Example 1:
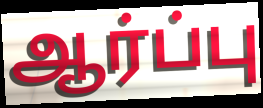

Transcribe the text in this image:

ஆர்ப்பு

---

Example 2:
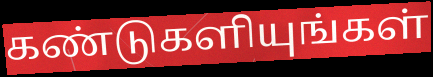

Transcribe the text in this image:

கண்டுகளியுங்கள்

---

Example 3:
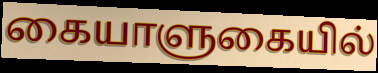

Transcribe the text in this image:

கையாளுகையில்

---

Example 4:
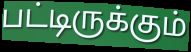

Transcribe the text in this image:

பட்டிருக்கும்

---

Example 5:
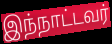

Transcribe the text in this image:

இந்நாட்டவர்